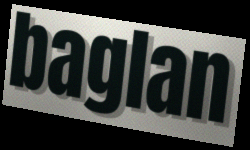
baglan